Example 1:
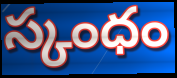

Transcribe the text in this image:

స్కంధం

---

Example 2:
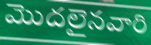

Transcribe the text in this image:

మొదలైనవారి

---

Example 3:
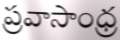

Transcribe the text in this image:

ప్రవాసాంధ్ర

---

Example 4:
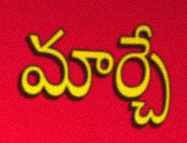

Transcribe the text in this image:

మార్చే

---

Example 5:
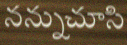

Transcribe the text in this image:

నన్నుచూసి